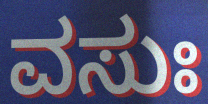
ವಸುಃ